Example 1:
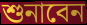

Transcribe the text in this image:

শুনাবেন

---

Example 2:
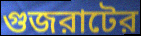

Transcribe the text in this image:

গুজরাটের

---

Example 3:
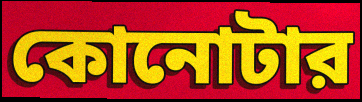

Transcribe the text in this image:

কোনোটার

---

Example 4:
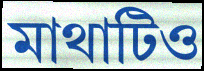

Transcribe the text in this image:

মাথাটিও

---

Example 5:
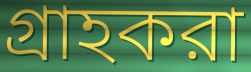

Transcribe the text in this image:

গ্রাহকরা